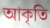
আকৃতি